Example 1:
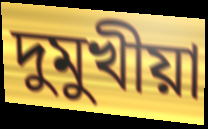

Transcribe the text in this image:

দুমুখীয়া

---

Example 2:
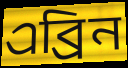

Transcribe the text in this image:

এব্ৰিন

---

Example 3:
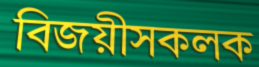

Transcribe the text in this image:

বিজয়ীসকলক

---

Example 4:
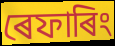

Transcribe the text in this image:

ৰেফাৰিং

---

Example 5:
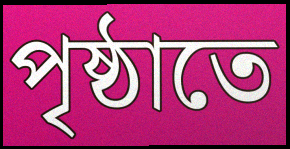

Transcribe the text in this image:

পৃষ্ঠাতে